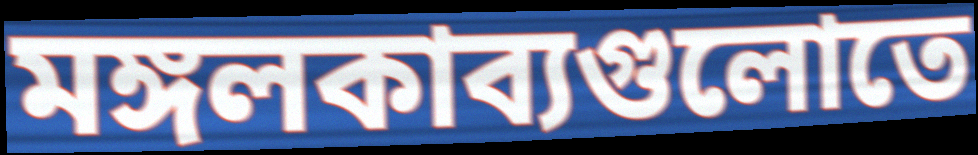
মঙ্গলকাব্যগুলোতে